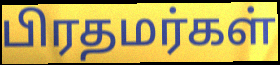
பிரதமர்கள்